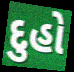
દુહો